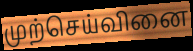
முற்செய்வினை